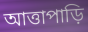
আত্তাপাড়ি